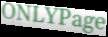
ONLYPage